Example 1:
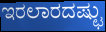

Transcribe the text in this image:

ಇರಲಾರದಷ್ಟು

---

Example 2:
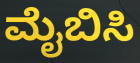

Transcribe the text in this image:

ಮೈಬಿಸಿ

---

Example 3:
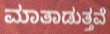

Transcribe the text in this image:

ಮಾತಾಡುತ್ತವೆ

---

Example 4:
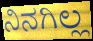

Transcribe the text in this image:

ನಿನಗಿಲ್ಲ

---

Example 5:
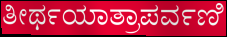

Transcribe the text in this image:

ತೀರ್ಥಯಾತ್ರಾಪರ್ವಣಿ